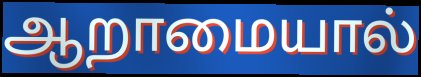
ஆறாமையால்